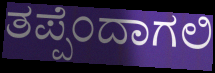
ತಪ್ಪೆಂದಾಗಲಿ